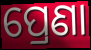
ପ୍ରେଣା